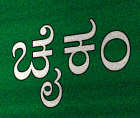
ಚೈಕಂ